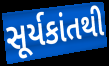
સૂર્યકાંતથી